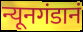
न्यूनगंडानं